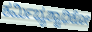
ಕರ್ಮಿಭ್ಯಶ್ಚಾಧಿಕೋ